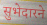
सुभेदारने